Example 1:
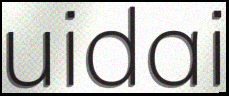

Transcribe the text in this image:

uidai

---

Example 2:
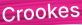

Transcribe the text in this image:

Crookes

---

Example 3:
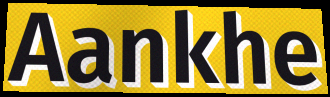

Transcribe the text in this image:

Aankhe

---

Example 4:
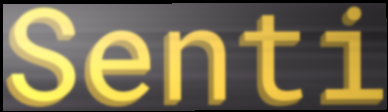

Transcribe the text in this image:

Senti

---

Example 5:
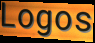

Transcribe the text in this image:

Logos